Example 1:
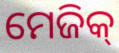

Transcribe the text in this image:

ମେଜିକ୍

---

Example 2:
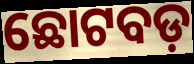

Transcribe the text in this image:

ଛୋଟବଡ଼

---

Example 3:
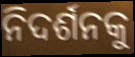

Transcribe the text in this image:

ନିଦର୍ଶନକୁ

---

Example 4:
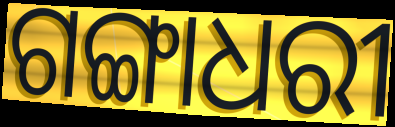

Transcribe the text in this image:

ଗଙ୍ଗାଧରୀ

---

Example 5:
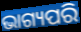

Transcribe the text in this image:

ଭାଗ୍ୟପରି